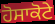
ਹੋਸਾਕੋਟੇ